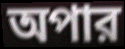
অপার